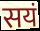
सयं